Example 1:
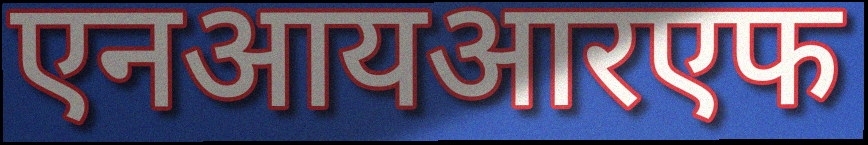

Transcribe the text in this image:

एनआयआरएफ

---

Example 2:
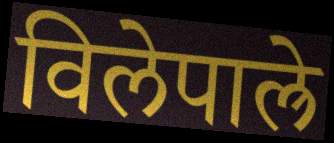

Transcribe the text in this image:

विलेपाल्रे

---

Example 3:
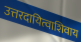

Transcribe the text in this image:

उत्तरदायित्वाशिवाय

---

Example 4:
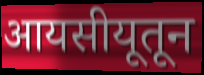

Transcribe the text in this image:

आयसीयूतून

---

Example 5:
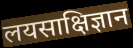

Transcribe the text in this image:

लयसाक्षिज्ञान